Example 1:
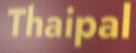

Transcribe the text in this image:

Thaipal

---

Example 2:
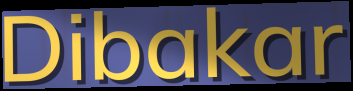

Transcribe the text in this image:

Dibakar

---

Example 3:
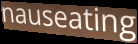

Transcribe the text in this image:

nauseating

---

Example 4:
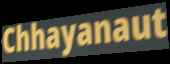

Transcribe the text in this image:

Chhayanaut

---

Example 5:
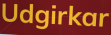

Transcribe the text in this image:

Udgirkar